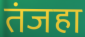
तंजहा